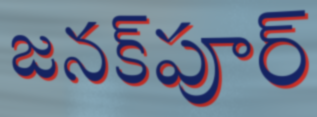
జనక్‌పూర్